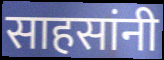
साहसांनी